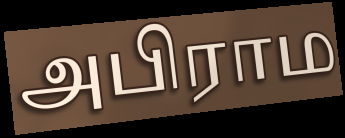
அபிராம